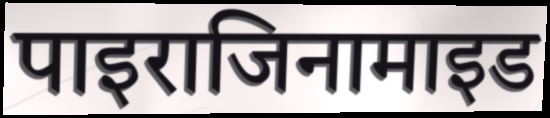
पाइराजिनामाइड